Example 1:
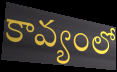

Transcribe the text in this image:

కావ్యంలో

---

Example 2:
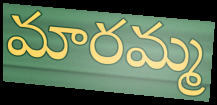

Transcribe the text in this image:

మారమ్మ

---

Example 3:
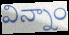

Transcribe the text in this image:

విన్నాం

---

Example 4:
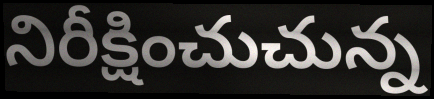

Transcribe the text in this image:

నిరీక్షించుచున్న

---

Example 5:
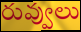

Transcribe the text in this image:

రువ్వులు